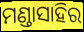
ମଣ୍ଡାସାହିର